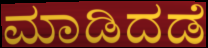
ಮಾಡಿದಡೆ